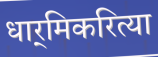
धार्मिकरित्या